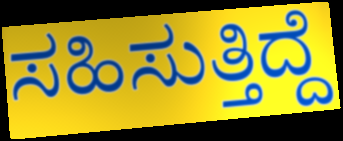
ಸಹಿಸುತ್ತಿದ್ದೆ